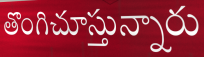
తొంగిచూస్తున్నారు